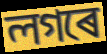
লগৰে